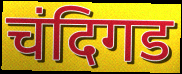
चंदिगड